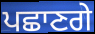
ਪਛਾਣਗੇ